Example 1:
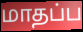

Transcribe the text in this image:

மாதப்ப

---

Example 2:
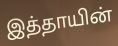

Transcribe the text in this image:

இத்தாயின்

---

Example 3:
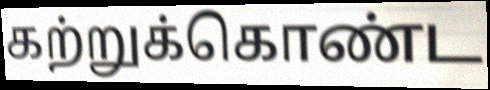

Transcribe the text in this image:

கற்றுக்கொண்ட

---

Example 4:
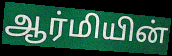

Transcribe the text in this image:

ஆர்மியின்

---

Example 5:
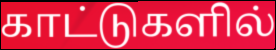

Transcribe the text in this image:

காட்டுகளில்